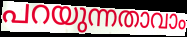
പറയുന്നതാവാം